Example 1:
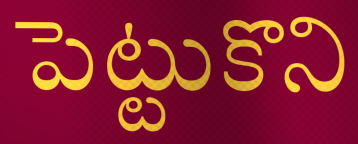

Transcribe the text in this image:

పెట్టుకొని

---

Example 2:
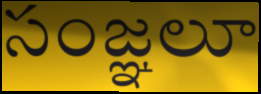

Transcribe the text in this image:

సంజ్ఞలూ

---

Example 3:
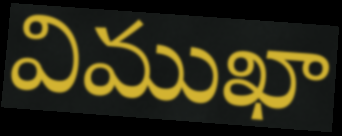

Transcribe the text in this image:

విముఖా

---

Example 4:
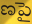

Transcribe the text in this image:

ణపై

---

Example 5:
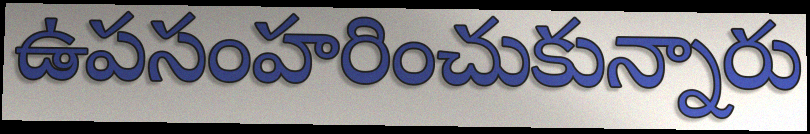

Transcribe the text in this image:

ఉపసంహరించుకున్నారు